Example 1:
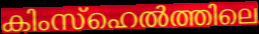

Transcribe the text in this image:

കിംസ്ഹെൽത്തിലെ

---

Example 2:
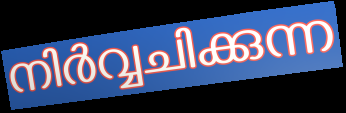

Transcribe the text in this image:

നിർവ്വചിക്കുന്ന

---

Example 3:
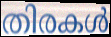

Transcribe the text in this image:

തിരകൾ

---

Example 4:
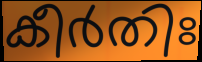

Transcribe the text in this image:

കീർതിഃ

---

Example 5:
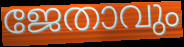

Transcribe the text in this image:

ജേതാവും